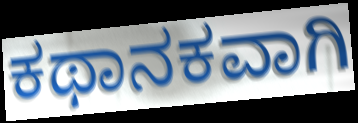
ಕಥಾನಕವಾಗಿ